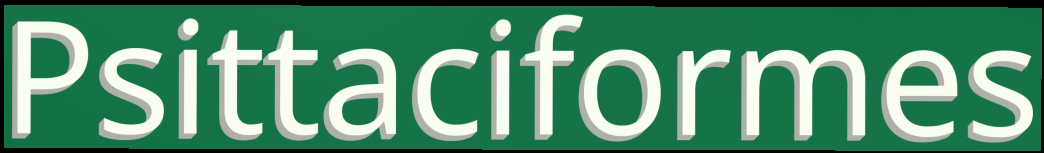
Psittaciformes